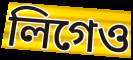
লিগেও